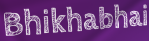
Bhikhabhai